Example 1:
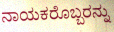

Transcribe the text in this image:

ನಾಯಕರೊಬ್ಬರನ್ನು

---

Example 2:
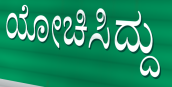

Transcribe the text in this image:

ಯೋಚಿಸಿದ್ದು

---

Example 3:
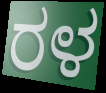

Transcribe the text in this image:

ರಳ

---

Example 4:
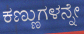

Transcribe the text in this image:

ಕಣ್ಣುಗಳನ್ನೇ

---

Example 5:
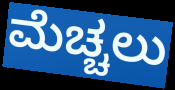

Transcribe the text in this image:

ಮೆಚ್ಚಲು